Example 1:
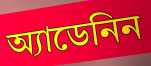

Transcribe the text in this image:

অ্যাডেনিন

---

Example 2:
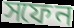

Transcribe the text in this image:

সফেন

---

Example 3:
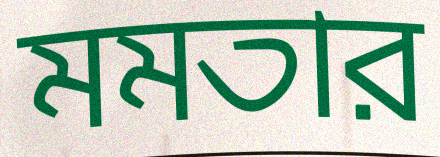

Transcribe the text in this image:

মমতার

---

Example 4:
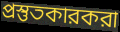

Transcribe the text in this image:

প্রস্তুতকারকরা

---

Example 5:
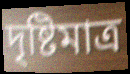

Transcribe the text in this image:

দৃষ্টিমাত্র